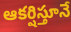
ఆకర్షిస్తూనే